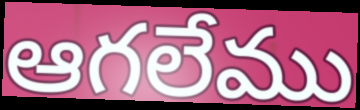
ఆగలేము